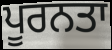
ਪੂਰਨਤਾ